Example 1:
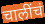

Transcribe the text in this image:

चालींचं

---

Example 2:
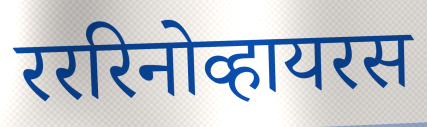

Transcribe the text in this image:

रररिनोव्हायरस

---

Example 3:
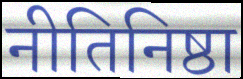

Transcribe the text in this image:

नीतिनिष्ठा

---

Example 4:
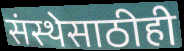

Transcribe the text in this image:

संस्थेसाठीही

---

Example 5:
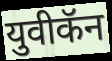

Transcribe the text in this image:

युवीकॅन